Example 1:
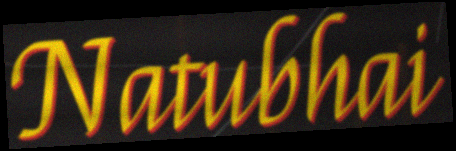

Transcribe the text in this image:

Natubhai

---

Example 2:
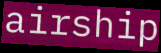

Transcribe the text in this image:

airship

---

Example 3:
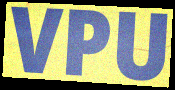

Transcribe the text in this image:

VPU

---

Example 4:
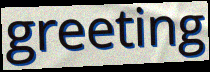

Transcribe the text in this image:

greeting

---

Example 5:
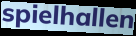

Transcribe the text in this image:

spielhallen